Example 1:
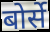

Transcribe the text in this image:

बोर्से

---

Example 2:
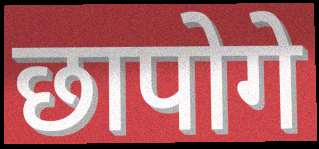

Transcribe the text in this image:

छापोगे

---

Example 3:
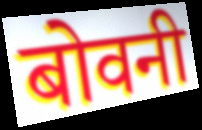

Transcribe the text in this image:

बोवनी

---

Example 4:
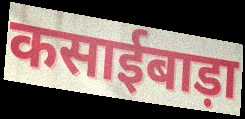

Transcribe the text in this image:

कसाईबाड़ा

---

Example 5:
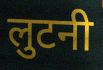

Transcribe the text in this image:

लुटनी